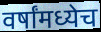
वर्षांमध्येच